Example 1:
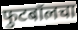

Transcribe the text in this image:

फुटबॉलचा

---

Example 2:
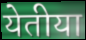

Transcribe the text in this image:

येतीया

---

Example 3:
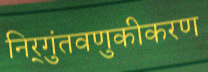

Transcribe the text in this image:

निर्गुंतवणुकीकरण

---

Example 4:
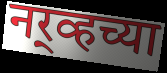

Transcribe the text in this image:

नर्व्हच्या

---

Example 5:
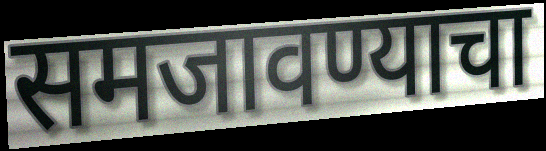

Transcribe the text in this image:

समजावण्याचा